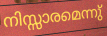
നിസ്സാരമെന്നു്